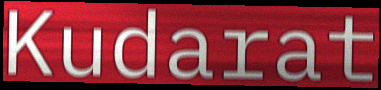
Kudarat